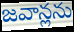
జవాన్లను